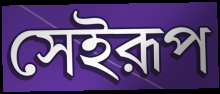
সেইরূপ